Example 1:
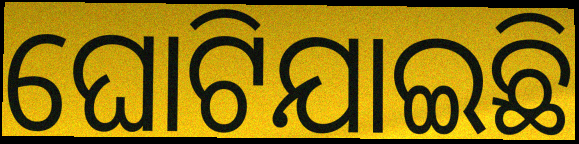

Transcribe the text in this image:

ଘୋଟିଯାଇଛି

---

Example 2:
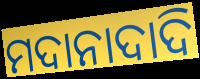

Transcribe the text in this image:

ମଦାନାଦାଦି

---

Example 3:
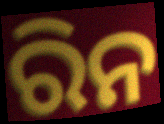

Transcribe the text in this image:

ରିନ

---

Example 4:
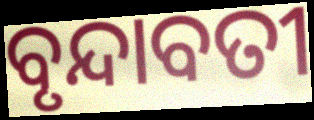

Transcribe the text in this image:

ବୃନ୍ଦାବତୀ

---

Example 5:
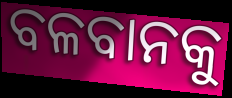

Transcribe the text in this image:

ବଳବାନକୁ